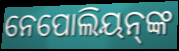
ନେପୋଲିୟନ୍‍ଙ୍କ